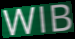
WIB